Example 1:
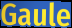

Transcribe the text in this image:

Gaule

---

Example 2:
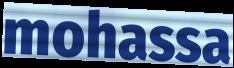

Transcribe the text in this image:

mohassa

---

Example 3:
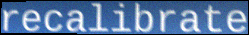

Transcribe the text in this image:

recalibrate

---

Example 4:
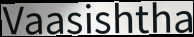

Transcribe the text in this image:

Vaasishtha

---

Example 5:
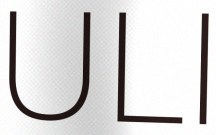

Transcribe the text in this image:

ULI